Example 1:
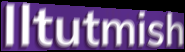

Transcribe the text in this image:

Iltutmish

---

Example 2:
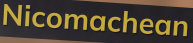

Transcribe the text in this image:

Nicomachean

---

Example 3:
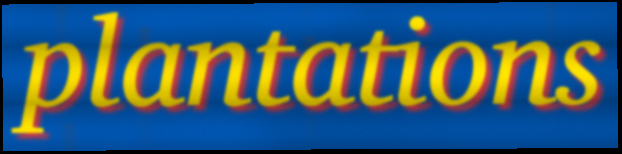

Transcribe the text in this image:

plantations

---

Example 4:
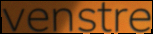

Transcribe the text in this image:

venstre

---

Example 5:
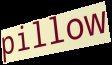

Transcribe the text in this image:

pillow